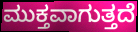
ಮುಕ್ತವಾಗುತ್ತದೆ